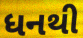
ધનથી